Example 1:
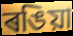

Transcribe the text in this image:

ৰঙিয়া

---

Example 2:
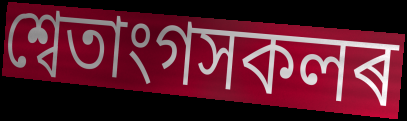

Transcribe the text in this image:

শ্বেতাংগসকলৰ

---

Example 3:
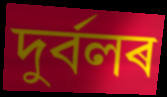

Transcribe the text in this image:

দুৰ্বলৰ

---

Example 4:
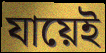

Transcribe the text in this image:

যায়েই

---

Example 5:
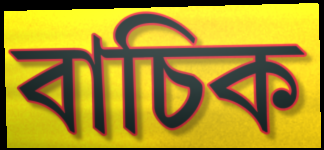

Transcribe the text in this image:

বাচিক